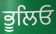
ਭੂਲਿਓ